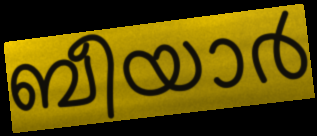
ബീയാർ